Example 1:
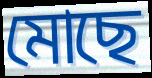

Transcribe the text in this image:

মোছে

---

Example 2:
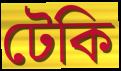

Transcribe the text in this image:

টেকি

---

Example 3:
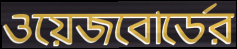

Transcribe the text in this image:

ওয়েজবোর্ডের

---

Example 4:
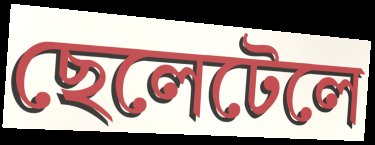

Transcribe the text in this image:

ছেলেটেলে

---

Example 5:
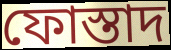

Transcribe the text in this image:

ফোস্তাদ